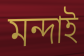
মন্দাই